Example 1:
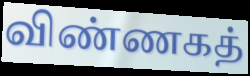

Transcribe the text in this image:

விண்ணகத்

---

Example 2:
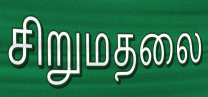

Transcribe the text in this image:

சிறுமதலை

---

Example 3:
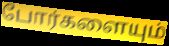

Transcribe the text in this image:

போர்களையும்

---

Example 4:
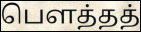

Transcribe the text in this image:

பௌத்தத்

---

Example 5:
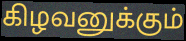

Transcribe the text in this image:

கிழவனுக்கும்